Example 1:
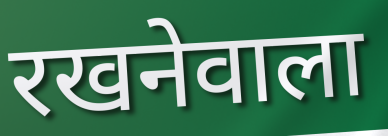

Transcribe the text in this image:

रखनेवाला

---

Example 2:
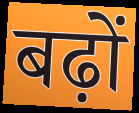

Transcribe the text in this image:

बढ़ों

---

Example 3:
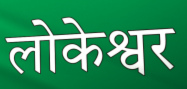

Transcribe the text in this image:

लोकेश्वर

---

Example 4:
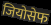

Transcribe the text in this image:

जियोसेफ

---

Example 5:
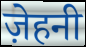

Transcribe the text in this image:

ज़ेहनी